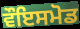
ਵੌਇਸਮੋਡ